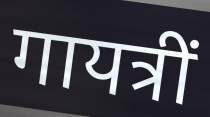
गायत्रीं